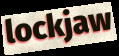
lockjaw